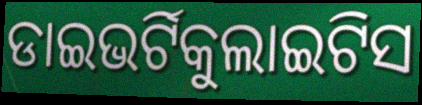
ଡାଇଭର୍ଟିକୁଲାଇଟିସ